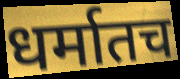
धर्मातच